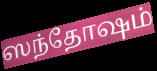
ஸந்தோஷம்